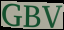
GBV